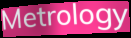
Metrology